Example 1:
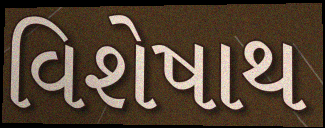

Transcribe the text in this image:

વિશેષાથ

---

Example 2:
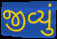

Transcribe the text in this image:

જીવ્યું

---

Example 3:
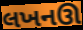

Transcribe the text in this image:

લખનઊ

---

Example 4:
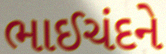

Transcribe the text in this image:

ભાઈચંદને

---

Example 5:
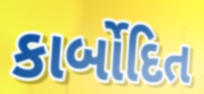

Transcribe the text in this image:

કાર્બોદિત